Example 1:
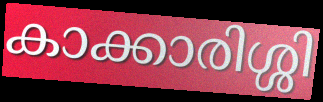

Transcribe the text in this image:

കാക്കാരിശ്ശി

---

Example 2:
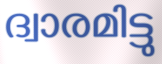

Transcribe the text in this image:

ദ്വാരമിട്ടു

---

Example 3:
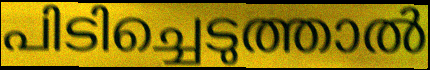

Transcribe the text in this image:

പിടിച്ചെടുത്താൽ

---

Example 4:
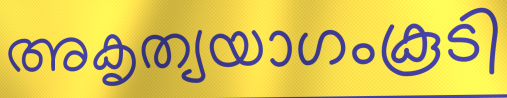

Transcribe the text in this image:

അകൃത്യയാഗംകൂടി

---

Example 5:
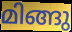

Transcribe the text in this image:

മിങ്ങു